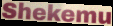
Shekemu